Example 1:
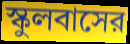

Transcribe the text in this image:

স্কুলবাসের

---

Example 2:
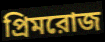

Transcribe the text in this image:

প্রিমরোজ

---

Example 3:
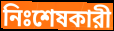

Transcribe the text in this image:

নিঃশেষকারী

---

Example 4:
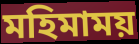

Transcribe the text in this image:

মহিমাময়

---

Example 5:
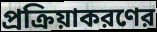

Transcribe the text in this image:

প্রক্রিয়াকরণের